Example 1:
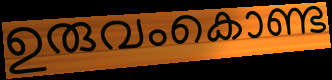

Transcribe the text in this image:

ഉരുവംകൊണ്ട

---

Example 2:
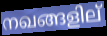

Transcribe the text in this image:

നഖങ്ങളില്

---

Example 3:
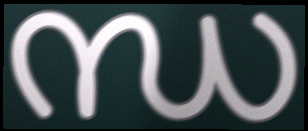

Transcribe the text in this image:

ന്ധ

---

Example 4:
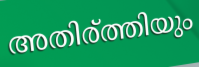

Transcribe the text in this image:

അതിര്ത്തിയും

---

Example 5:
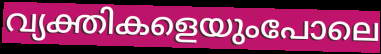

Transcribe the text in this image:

വ്യക്തികളെയുംപോലെ